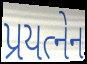
પ્રયત્નેન